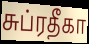
சுப்ரதீகா